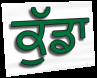
ਕੁੱਡਾ